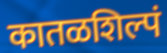
कातळशिल्पं